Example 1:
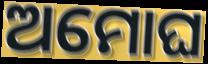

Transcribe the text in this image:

ଅମୋଘ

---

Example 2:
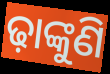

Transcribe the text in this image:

ଢ଼ାଙ୍କୁଣି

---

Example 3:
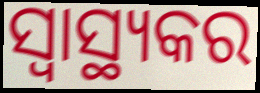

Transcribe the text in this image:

ସ୍ୱାସ୍ଥ୍ୟକର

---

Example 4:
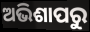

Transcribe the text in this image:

ଅଭିଶାପରୁ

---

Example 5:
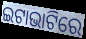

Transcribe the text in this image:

ଇଟାଭାଟିରେ